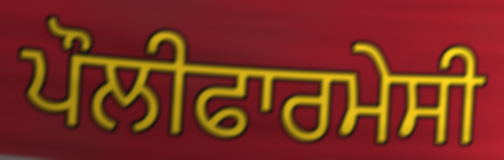
ਪੌਲੀਫਾਰਮੇਸੀ